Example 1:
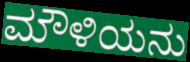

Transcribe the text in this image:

ಮೌಳಿಯನು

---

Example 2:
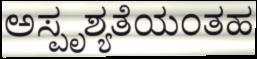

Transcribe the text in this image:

ಅಸ್ಪೃಶ್ಯತೆಯಂತಹ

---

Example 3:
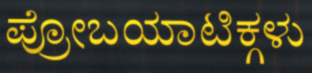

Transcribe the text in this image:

ಪ್ರೋಬಯಾಟಿಕ್ಗಳು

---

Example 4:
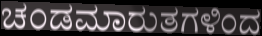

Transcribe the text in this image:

ಚಂಡಮಾರುತಗಳಿಂದ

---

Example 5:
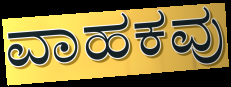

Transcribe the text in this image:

ವಾಹಕವು